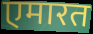
एमारत